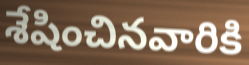
శేషించినవారికి